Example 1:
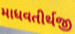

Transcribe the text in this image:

માધવતીર્થજી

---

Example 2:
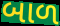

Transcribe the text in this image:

બાળ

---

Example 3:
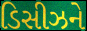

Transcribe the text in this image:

ડિસીઝને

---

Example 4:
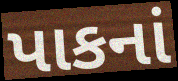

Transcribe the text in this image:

પાકનાં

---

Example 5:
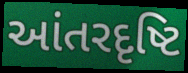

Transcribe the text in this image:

આંતરદૃષ્ટિ